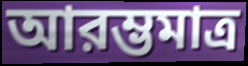
আরম্ভমাত্র